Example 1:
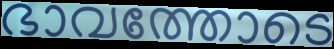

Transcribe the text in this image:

ഭാവത്തോടെ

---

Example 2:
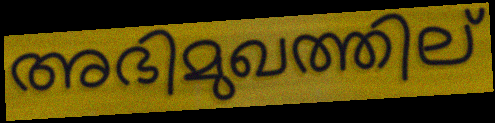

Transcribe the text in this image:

അഭിമുഖത്തില്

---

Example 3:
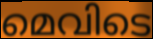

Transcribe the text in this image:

മെവിടെ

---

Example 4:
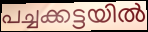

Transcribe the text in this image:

പച്ചക്കട്ടയിൽ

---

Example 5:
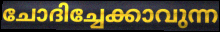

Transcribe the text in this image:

ചോദിച്ചേക്കാവുന്ന